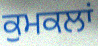
ਕੁਮਕਲਾਂ